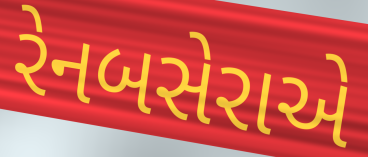
રેનબસેરાએ